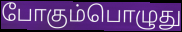
போகும்பொழுது